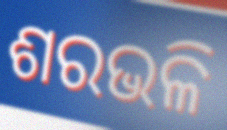
ଶରଭଳି